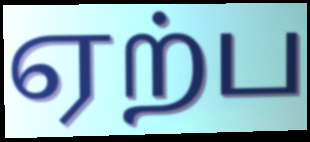
ஏற்ப